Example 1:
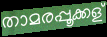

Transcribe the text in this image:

താമരപ്പൂക്കള്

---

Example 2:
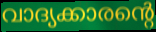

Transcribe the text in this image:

വാദ്യക്കാരന്റെ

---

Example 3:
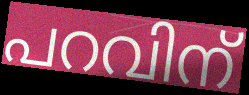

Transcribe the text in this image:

പറവിന്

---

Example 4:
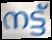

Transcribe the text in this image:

നട്ട്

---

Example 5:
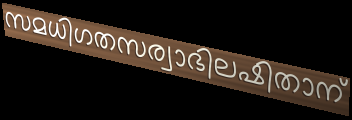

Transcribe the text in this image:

സമധിഗതസര്വാഭിലഷിതാന്